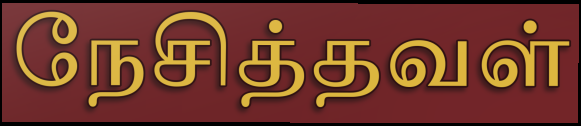
நேசித்தவள்